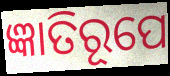
ଜ୍ଞାତିରୂପେ